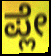
ಪ್ಲೇ